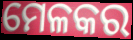
ମେଳକର